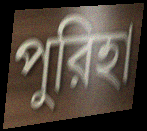
পুরিহা